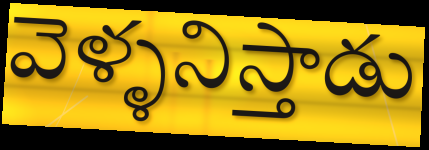
వెళ్ళనిస్తాడు